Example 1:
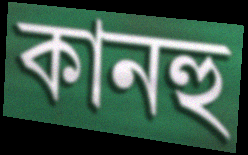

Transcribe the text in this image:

কানহু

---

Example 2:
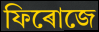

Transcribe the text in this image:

ফিৰোজে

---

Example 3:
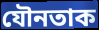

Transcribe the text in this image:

যৌনতাক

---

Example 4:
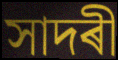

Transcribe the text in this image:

সাদৰী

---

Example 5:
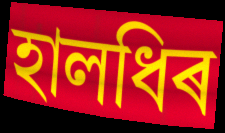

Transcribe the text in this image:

হালধিৰ